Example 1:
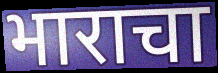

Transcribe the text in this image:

भाराचा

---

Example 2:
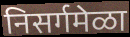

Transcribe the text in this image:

निसर्गमेळा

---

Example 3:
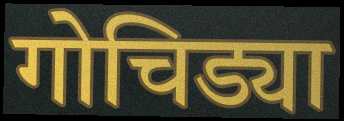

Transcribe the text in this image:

गोचिड्या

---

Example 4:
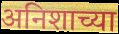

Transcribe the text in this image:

अनिशाच्या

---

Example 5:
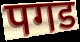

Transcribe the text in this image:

पगड